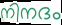
നിനദം